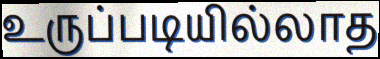
உருப்படியில்லாத